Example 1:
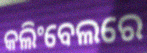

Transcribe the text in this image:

କଲିଂବେଲରେ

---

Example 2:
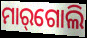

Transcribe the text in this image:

ମାର୍‌ଗୋଲି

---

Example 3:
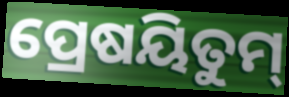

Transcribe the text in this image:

ପ୍ରେଷୟିତୁମ୍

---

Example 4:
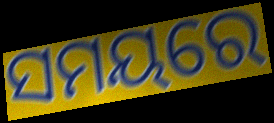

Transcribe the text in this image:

ସମୟରେ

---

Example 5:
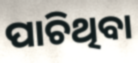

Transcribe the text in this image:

ପାଚିଥିବା